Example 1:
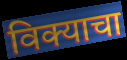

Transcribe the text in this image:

विक्याचा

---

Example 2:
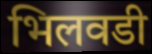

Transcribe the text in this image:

भिलवडी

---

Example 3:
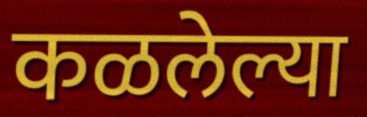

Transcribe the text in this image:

कळलेल्या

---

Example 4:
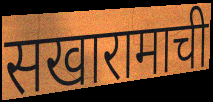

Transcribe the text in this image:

सखारामाची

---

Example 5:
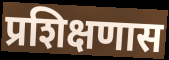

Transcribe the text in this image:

प्रशिक्षणास